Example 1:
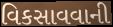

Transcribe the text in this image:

વિકસાવવાની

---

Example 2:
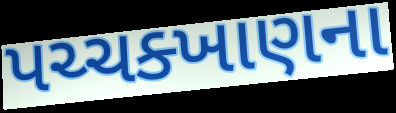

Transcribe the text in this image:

પચ્ચક્ખાણના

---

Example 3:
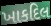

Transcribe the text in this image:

ખાકદિલ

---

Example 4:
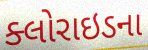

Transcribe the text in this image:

ક્લોરાઇડના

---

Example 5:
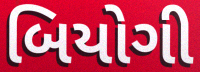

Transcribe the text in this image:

બિયોગી